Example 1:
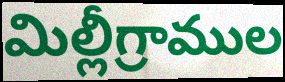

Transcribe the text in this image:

మిల్లీగ్రాముల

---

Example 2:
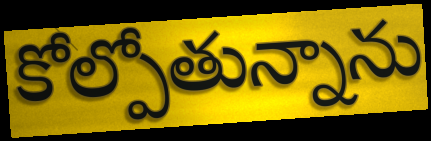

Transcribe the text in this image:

కోల్పోతున్నాను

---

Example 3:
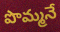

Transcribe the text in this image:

పొమ్మనే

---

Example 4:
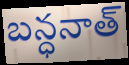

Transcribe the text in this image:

బన్ధనాత్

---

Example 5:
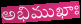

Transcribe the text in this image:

అభిముఖాః